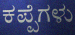
ಕಪ್ಪೆಗಳು